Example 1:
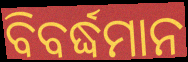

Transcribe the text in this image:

ବିବର୍ଦ୍ଧମାନ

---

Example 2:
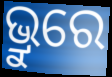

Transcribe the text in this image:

ଭ୍ରୁରେ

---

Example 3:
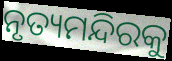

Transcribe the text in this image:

ନୃତ୍ୟମନ୍ଦିରକୁ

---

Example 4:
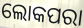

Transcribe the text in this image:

ଲୋକପରା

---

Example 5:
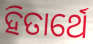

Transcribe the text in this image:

ହିତାର୍ଥେ